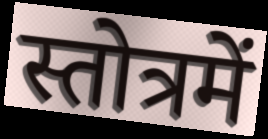
स्तोत्रमें